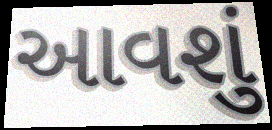
આવશું